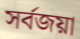
সৰ্বজয়া